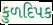
કુળદિપક